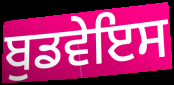
ਬੁਡਵੇਇਸ